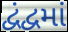
દ્વંદ્વમાં